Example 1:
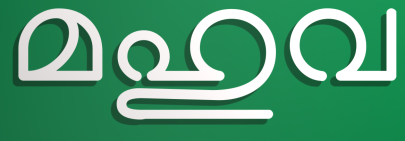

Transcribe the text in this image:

മഹുവ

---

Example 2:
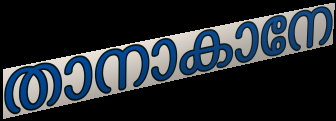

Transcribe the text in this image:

താനാകാനേ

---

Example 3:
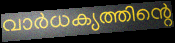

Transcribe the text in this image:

വാർധക്യത്തിന്റെ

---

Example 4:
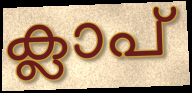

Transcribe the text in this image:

ക്ലാപ്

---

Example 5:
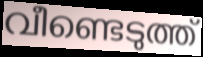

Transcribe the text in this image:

വീണ്ടെടുത്ത്